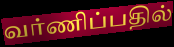
வர்ணிப்பதில்